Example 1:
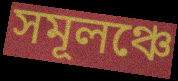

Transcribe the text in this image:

সমূলঞ্চে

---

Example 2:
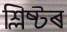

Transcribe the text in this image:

শ্লিষ্টৰ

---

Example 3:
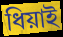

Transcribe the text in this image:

ধিয়াই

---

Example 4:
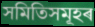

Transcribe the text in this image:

সমিতিসমূহৰ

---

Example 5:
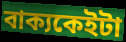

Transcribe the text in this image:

বাক্যকেইটা